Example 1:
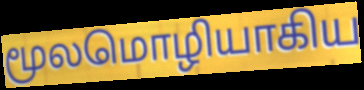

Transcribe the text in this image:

மூலமொழியாகிய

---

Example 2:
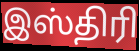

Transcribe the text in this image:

இஸ்திரி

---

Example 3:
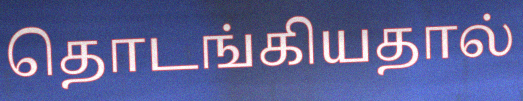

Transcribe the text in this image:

தொடங்கியதால்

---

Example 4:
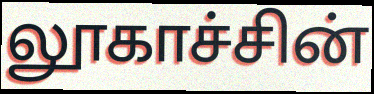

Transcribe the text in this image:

லூகாச்சின்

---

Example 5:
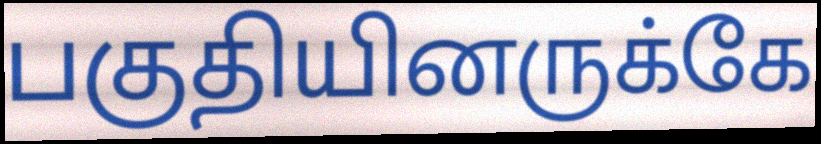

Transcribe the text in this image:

பகுதியினருக்கே